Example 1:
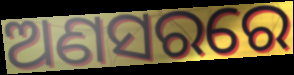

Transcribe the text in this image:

ଅଣସରରେ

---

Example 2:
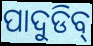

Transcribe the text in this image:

ପାଦୁଡିବ୍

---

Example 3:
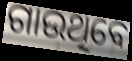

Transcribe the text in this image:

ଗାଉଥିବେ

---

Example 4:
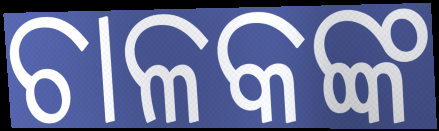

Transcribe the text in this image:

ଚାଳକଙ୍କ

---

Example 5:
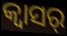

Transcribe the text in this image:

କ୍ୱାସର୍